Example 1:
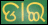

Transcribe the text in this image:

ଡାଇ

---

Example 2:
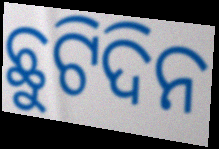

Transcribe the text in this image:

ଛୁଟିଦିନ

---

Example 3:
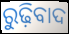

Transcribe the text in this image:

ରୁଢ଼ିବାଦ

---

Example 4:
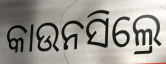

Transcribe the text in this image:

କାଉନସିଲ୍ରେ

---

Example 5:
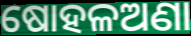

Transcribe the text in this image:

ଷୋହଳଅଣା